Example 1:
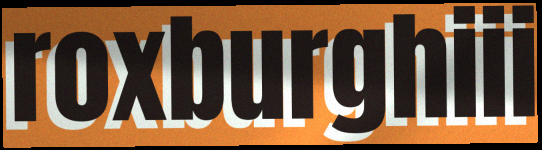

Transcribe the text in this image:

roxburghiii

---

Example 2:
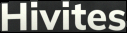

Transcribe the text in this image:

Hivites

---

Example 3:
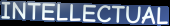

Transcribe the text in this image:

INTELLECTUAL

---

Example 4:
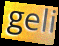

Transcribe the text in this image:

geli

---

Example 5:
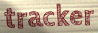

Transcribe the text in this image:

tracker